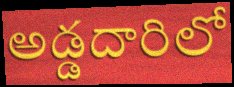
అడ్డదారిలో